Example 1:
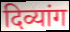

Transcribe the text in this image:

दिव्यांग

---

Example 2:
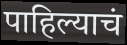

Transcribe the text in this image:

पाहिल्याचं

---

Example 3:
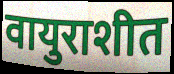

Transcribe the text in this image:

वायुराशीत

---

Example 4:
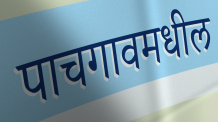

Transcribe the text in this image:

पाचगावमधील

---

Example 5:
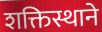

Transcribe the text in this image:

शक्तिस्थाने